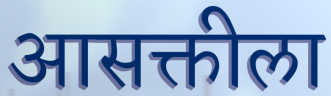
आसक्तीला